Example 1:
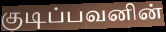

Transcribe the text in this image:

குடிப்பவனின்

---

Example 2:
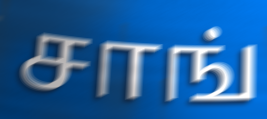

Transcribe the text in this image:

சாங்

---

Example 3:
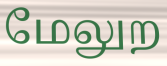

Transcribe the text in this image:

மேலுற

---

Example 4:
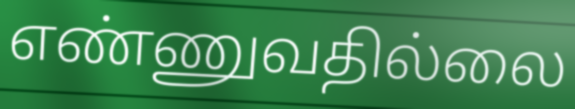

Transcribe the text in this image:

எண்ணுவதில்லை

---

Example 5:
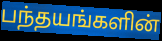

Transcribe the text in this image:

பந்தயங்களின்